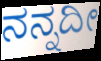
ನನ್ನದೀ